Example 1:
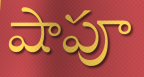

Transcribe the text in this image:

షాపూ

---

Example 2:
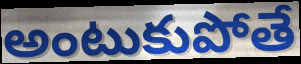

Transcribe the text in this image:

అంటుకుపోతే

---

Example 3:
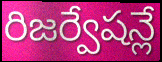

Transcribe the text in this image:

రిజర్వేషన్లే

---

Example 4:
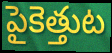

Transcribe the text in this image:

పైకెత్తుట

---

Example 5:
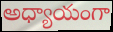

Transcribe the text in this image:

అధ్యాయంగా